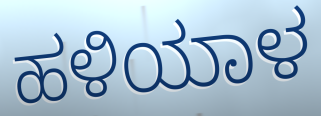
ಹಳಿಯಾಳ